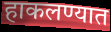
हाकलण्यात